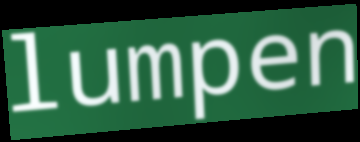
lumpen